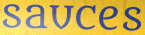
sauces